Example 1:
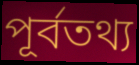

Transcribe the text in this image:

পূর্বতথ্য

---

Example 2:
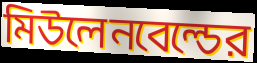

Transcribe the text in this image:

মিউলেনবেল্ডের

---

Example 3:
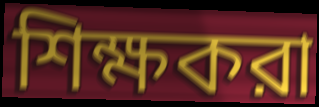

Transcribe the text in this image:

শিক্ষকরা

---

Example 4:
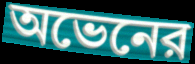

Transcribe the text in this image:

অভেনের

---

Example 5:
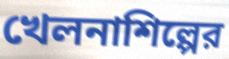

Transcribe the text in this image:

খেলনাশিল্পের